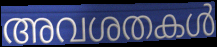
അവശതകൾ